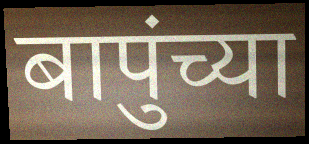
बापुंच्या